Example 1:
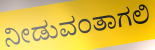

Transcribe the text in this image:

ನೀಡುವಂತಾಗಲಿ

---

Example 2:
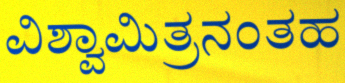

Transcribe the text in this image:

ವಿಶ್ವಾಮಿತ್ರನಂತಹ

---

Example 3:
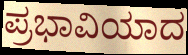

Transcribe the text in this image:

ಪ್ರಭಾವಿಯಾದ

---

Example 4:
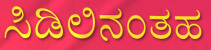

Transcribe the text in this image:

ಸಿಡಿಲಿನಂತಹ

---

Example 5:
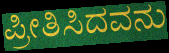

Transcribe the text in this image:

ಪ್ರೀತಿಸಿದವನು